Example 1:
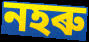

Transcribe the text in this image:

নহৰু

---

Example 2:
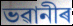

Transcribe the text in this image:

ভৱানীৰ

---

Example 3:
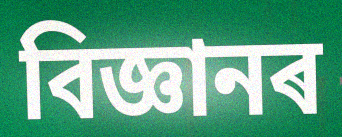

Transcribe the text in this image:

বিজ্ঞানৰ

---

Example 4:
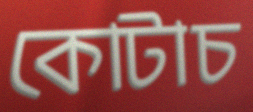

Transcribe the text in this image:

কোটাচ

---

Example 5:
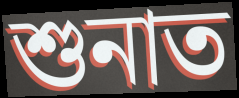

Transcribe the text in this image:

শুনাত